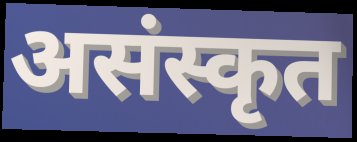
असंस्कृत